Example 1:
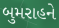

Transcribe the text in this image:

બુમરાહને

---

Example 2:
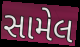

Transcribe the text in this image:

સામેલ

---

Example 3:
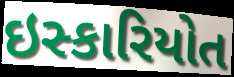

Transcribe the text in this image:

ઇસ્કારિયોત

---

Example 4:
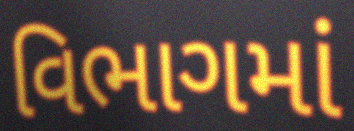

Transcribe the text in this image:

વિભાગમાં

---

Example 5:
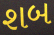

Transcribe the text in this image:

શબ